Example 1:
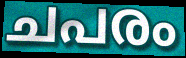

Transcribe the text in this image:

ചപരം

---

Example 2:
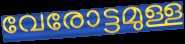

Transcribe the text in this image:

വേരോട്ടമുള്ള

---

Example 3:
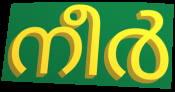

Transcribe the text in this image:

നീർ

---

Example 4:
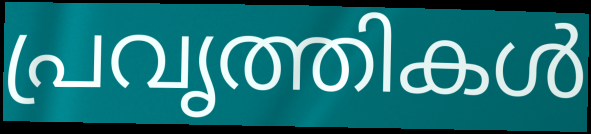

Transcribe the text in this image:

പ്രവൃത്തികൾ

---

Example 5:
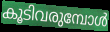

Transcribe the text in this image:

കൂടിവരുമ്പോൾ